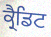
ਕ੍ਰੈਡਿਟ